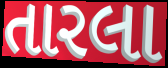
તારલા